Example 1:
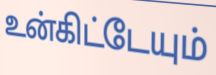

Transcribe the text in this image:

உன்கிட்டேயும்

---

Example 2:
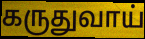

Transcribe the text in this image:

கருதுவாய்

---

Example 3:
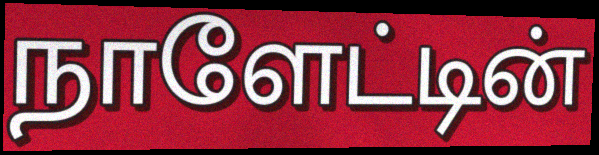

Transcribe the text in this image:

நாளேட்டின்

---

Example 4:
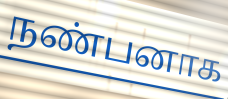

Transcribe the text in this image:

நண்பனாக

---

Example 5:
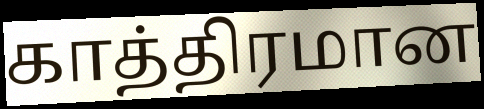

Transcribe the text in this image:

காத்திரமான